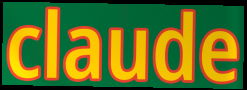
claude